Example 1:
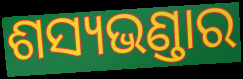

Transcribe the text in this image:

ଶସ୍ୟଭଣ୍ଡାର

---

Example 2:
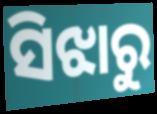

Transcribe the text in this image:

ସିଝାରୁ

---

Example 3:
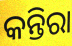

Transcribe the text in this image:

କନ୍ତିରା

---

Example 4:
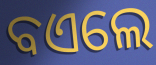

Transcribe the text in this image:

ବଏଲେ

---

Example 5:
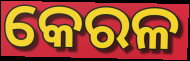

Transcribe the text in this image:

କେରଳ